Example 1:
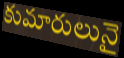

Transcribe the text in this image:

కుమారులునై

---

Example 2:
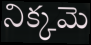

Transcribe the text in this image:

నిక్కమె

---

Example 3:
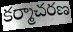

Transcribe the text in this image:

కర్మాచరణ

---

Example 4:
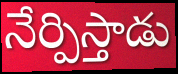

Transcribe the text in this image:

నేర్పిస్తాడు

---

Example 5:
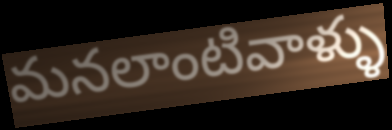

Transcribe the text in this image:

మనలాంటివాళ్ళు